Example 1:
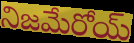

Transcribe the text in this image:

నిజమేరోయ్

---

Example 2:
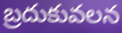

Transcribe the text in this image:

బ్రదుకువలన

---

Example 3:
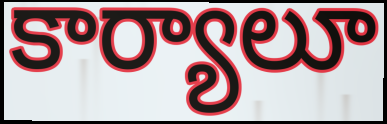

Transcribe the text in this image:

కార్యాలూ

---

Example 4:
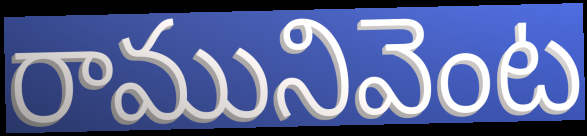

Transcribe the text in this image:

రామునివెంట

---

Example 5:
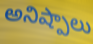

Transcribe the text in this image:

అనిష్పాలు